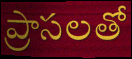
ప్రాసలతో